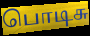
பொடிசு